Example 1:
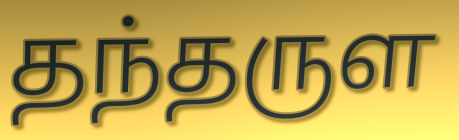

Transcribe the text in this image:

தந்தருள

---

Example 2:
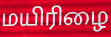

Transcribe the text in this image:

மயிரிழை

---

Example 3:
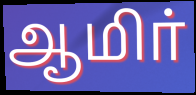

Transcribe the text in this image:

ஆமிர்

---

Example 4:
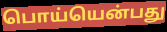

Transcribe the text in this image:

பொய்யென்பது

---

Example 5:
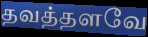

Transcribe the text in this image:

தவத்தளவே